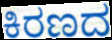
ಕಿರಣದ